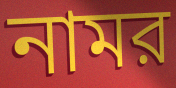
নামর